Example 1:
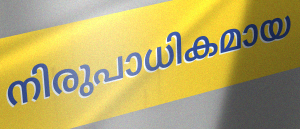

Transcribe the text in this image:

നിരുപാധികമായ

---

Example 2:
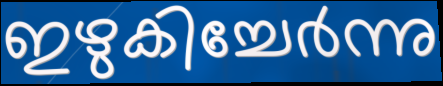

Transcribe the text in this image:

ഇഴുകിച്ചേർന്നു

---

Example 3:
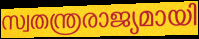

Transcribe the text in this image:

സ്വതന്ത്രരാജ്യമായി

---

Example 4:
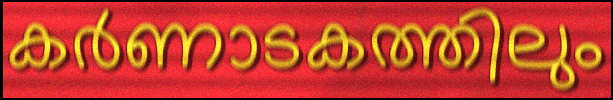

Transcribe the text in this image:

കർണാടകത്തിലും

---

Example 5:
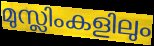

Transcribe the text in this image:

മുസ്ലിംകളിലും